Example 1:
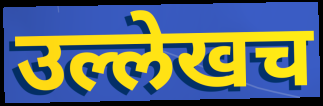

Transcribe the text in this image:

उल्लेखच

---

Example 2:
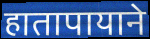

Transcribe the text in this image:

हातापायाने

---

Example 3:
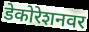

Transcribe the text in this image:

डेकोरेशनवर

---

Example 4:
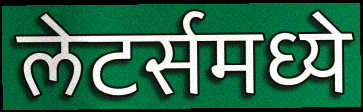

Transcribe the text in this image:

लेटर्समध्ये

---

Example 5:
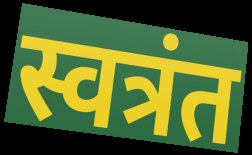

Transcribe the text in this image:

स्वत्रंत